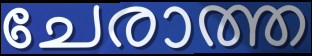
ചേരാത്ത